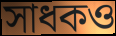
সাধকও